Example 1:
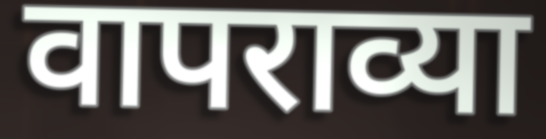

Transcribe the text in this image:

वापराव्या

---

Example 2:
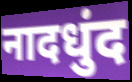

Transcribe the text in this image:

नादधुंद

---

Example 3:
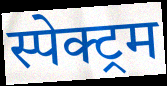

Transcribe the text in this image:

स्पेक्ट्रम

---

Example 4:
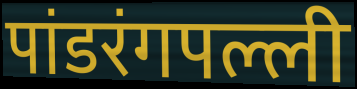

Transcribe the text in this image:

पांडरंगपल्ली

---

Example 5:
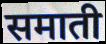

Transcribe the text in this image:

समाती